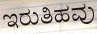
ಇರುತಿಹವು